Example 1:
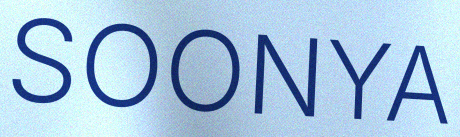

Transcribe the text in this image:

SOONYA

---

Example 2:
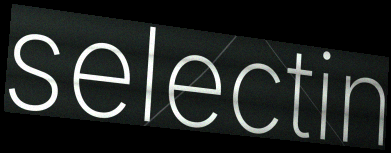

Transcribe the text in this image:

selectin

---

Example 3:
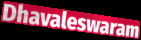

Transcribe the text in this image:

Dhavaleswaram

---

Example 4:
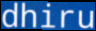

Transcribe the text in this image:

dhiru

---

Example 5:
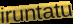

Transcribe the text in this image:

iruntatu